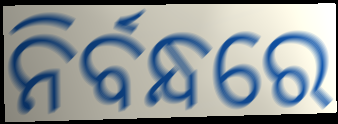
ନିର୍ବନ୍ଧରେ